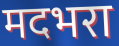
मदभरा